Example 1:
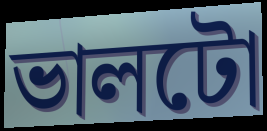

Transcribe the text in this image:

ভালটো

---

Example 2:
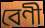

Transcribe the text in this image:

বেণী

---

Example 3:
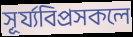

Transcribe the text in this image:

সূৰ্য্যবিপ্ৰসকলে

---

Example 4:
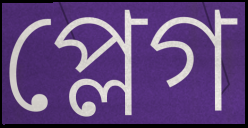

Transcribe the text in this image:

প্লেগ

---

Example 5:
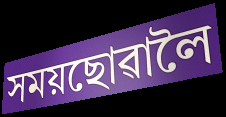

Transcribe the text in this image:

সময়ছোৱালৈ